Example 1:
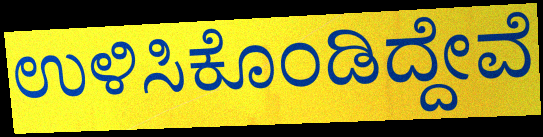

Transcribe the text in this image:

ಉಳಿಸಿಕೊಂಡಿದ್ದೇವೆ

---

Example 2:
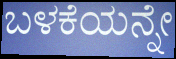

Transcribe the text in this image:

ಬಳಕೆಯನ್ನೇ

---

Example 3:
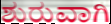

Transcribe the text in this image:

ಶುರುವಾಗಿ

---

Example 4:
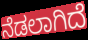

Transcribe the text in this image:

ನೆಡಲಾಗಿದೆ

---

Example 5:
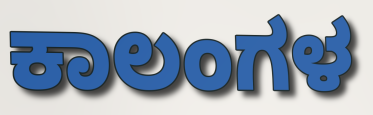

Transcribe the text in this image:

ಕಾಲಂಗಳ